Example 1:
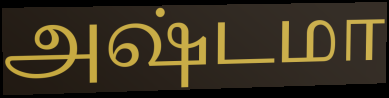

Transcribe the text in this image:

அஷ்டமா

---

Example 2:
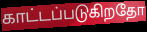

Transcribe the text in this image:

காட்டப்படுகிறதோ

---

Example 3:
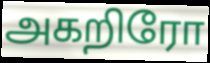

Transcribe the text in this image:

அகறிரோ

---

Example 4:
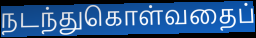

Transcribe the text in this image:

நடந்துகொள்வதைப்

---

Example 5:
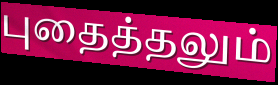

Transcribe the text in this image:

புதைத்தலும்